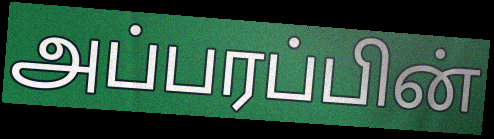
அப்பரப்பின்